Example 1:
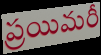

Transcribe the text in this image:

ప్రయిమరీ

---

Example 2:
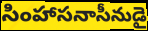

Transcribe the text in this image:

సింహాసనాసీనుడై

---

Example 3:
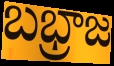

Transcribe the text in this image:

బభ్రాజ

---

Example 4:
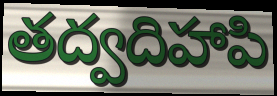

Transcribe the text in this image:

తద్వదిహాపి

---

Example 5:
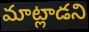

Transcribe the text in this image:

మాట్లాడని